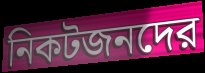
নিকটজনদের